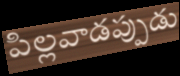
పిల్లవాడప్పుడు